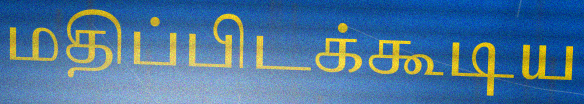
மதிப்பிடக்கூடிய